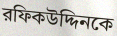
রফিকউদ্দিনকে